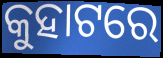
କୁହାଟରେ